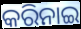
କରିନାଇ